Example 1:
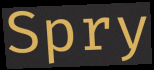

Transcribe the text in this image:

Spry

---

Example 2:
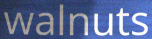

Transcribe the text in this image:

walnuts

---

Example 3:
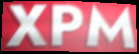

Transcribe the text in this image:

XPM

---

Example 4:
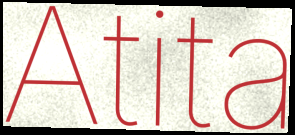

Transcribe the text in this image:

Atita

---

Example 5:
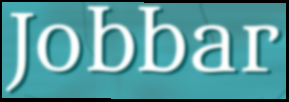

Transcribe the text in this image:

Jobbar